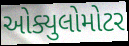
ઓક્યુલોમોટર